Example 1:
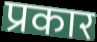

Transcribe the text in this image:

प्रकार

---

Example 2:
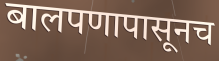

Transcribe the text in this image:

बालपणापासूनच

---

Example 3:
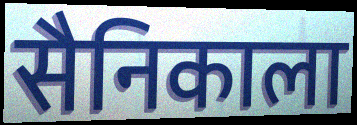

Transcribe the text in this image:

सैनिकाला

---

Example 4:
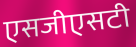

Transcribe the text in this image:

एसजीएसटी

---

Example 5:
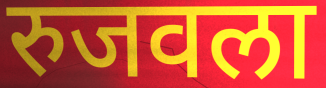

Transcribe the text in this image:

रुजवला